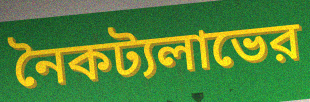
নৈকট্যলাভের